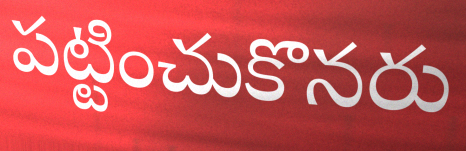
పట్టించుకొనరు